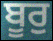
ਬੂਰੁ